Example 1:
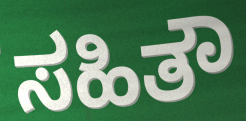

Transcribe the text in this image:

ಸಹಿತೌ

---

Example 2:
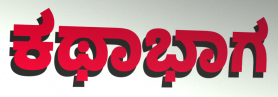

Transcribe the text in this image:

ಕಥಾಭಾಗ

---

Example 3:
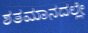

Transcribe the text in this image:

ಶತಮಾನದಲ್ಲೇ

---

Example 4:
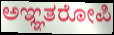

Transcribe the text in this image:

ಅಞ್ಞತರೋಪಿ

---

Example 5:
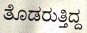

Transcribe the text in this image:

ತೊಡರುತ್ತಿದ್ದ